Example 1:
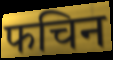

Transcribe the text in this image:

फचिन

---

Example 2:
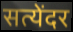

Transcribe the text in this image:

सत्येंदर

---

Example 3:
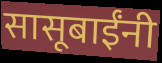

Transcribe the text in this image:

सासूबाईंनी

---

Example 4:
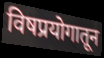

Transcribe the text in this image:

विषप्रयोगातून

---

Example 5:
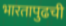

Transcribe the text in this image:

भारतापुढची